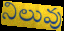
నిలువు